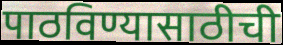
पाठविण्यासाठीची